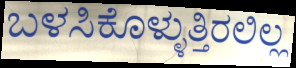
ಬಳಸಿಕೊಳ್ಳುತ್ತಿರಲಿಲ್ಲ